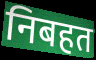
निबहत